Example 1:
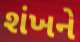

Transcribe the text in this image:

શંખને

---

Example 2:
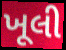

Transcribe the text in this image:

ખૂલી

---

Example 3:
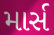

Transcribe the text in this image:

માર્સ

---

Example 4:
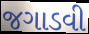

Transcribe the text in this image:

જગાડવી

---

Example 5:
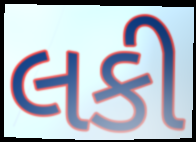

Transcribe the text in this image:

લકી